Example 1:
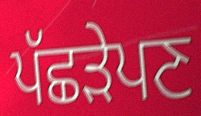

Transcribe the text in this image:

ਪੱਛੜੇਪਣ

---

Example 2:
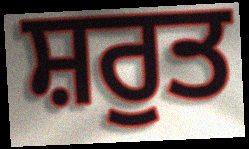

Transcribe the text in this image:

ਸ਼ਰੁਤ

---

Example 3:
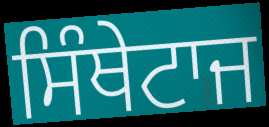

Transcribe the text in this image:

ਸਿੰਥੇਟਾਜ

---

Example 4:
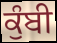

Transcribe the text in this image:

ਕੁੰਬੀ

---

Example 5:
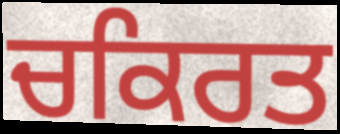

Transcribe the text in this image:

ਚਕਿਰਤ